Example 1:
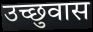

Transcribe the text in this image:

उच्छुवास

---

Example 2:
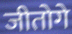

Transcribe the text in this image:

जीतोगे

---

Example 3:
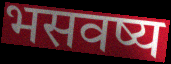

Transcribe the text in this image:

भसवष्य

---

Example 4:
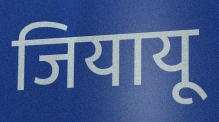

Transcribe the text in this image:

जियायू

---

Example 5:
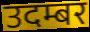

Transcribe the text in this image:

उदम्बर